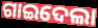
ଗାଇଦେଲା